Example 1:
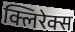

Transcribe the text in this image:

क्लिरेक्स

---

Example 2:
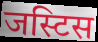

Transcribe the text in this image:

जस्‍टिस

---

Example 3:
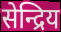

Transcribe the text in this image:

सेन्द्रिय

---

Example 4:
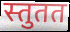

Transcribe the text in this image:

स्तुतत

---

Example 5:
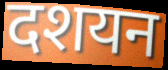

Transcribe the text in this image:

दशयन